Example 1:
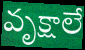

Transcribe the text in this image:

వృక్షాలే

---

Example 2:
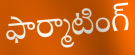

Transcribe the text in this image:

ఫార్మాటింగ్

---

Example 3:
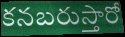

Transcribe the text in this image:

కనబరుస్తారో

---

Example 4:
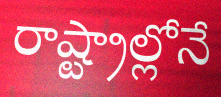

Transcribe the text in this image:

రాష్ట్రాల్లోనే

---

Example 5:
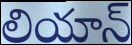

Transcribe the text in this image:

లియాన్